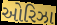
ઓરિઝા